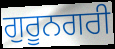
ਗੁਰੂਨਗਰੀ